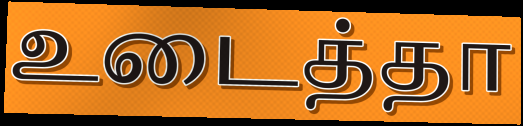
உடைத்தா